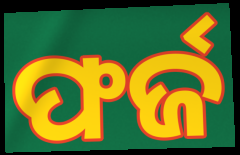
ଫର୍ଜ